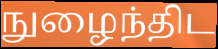
நுழைந்திட